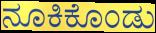
ನೂಕಿಕೊಂಡು